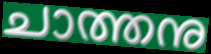
ചാത്തനു